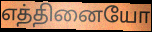
எத்தினையோ